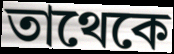
তাথেকে